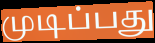
முடிப்பது